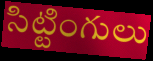
సిట్టింగులు